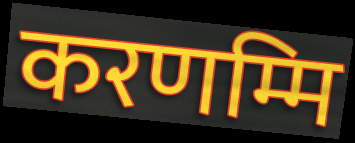
करणम्मि